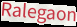
Ralegaon